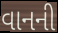
વાનની